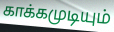
காக்கமுடியும்